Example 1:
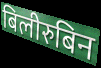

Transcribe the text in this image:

बिलीरुबिन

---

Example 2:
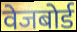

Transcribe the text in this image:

वेजबोर्ड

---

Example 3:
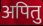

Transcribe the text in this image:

अपितु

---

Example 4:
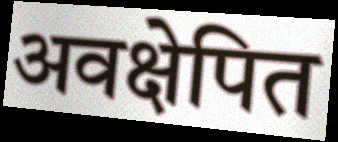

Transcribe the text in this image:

अवक्षेपित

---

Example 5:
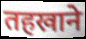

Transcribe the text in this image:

तहखाने